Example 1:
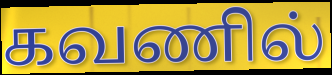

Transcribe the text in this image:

கவணில்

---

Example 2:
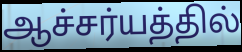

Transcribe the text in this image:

ஆச்சர்யத்தில்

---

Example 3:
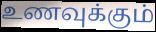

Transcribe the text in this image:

உணவுக்கும்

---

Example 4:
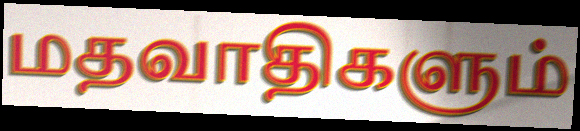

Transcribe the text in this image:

மதவாதிகளும்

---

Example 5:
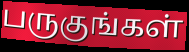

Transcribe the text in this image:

பருகுங்கள்